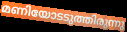
മണിയോടടുത്തിരുന്നു